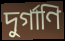
দুর্গাণি